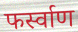
फर्स्वाण